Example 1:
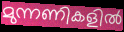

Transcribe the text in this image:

മുന്നണികളിൽ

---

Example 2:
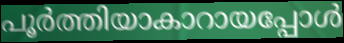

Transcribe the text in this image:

പൂർത്തിയാകാറായപ്പോൾ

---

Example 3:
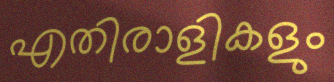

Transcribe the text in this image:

എതിരാളികളും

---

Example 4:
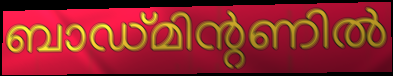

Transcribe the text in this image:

ബാഡ്മിന്റണിൽ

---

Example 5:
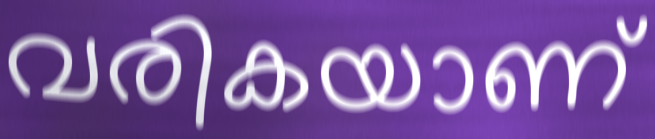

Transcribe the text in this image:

വരികയാണ്